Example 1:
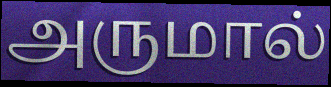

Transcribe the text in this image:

அருமால்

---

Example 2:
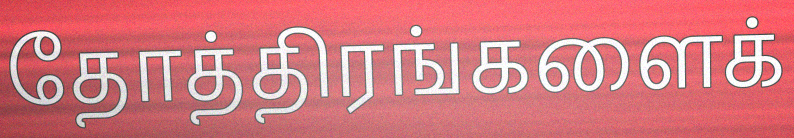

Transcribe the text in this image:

தோத்திரங்களைக்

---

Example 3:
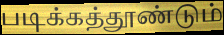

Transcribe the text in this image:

படிக்கத்தூண்டும்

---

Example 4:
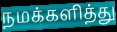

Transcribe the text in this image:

நமக்களித்து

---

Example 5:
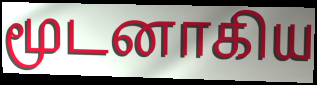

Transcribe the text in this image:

மூடனாகிய